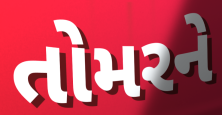
તોમરને